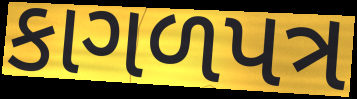
કાગળપત્ર